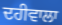
ਦਹੀਵਾਲਾ